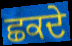
ਛਕਦੇ